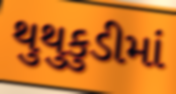
થુથુકુડીમાં